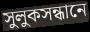
সুলুকসন্ধানে